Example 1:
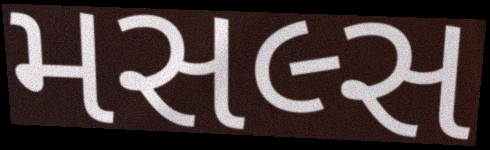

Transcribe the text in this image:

મસલ્સ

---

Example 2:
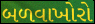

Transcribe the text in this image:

બળવાખોરો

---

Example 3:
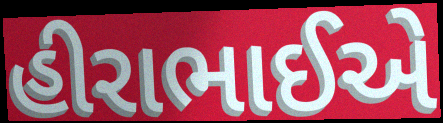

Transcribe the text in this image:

હીરાભાઈએ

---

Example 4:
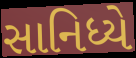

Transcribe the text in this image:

સાનિધ્યે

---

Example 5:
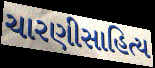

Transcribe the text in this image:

ચારણીસાહિત્ય